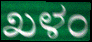
ಖಳಂ